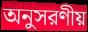
অনুসরণীয়